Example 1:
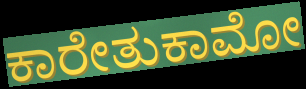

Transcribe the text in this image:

ಕಾರೇತುಕಾಮೋ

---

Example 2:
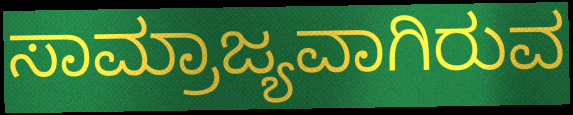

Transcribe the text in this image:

ಸಾಮ್ರಾಜ್ಯವಾಗಿರುವ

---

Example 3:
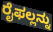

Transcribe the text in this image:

ರೈಫಲ್ಲನ್ನು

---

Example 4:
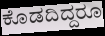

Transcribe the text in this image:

ಕೊಡದಿದ್ದರೂ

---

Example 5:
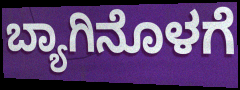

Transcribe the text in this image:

ಬ್ಯಾಗಿನೊಳಗೆ